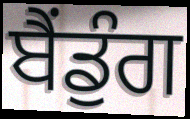
ਬੈਂਡੁੰਗ